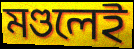
মণ্ডলেই